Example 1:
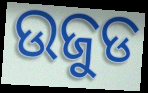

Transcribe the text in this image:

ଉଜୁଡ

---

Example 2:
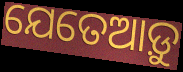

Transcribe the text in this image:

ଯେତେଆଡ଼ୁ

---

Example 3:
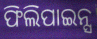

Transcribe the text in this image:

ଫିଲିପାଇନ୍ସ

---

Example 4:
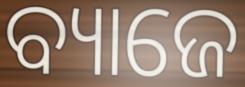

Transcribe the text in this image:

ବ୍ୟାଜେ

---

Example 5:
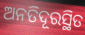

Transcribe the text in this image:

ଅନତିଦୂରସ୍ଥିତ